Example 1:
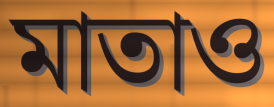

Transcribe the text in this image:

মাতাও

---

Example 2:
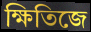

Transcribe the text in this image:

ক্ষিতিজে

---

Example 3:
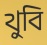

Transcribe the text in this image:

থুবি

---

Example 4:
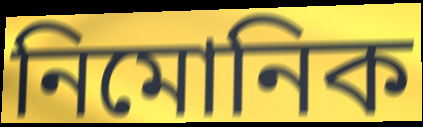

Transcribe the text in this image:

নিমোনিক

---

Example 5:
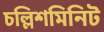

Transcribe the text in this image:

চল্লিশমিনিট